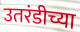
उतरंडीच्या